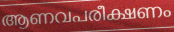
ആണവപരീക്ഷണം